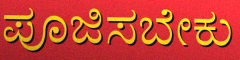
ಪೂಜಿಸಬೇಕು